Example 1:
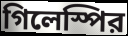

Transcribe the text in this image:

গিলেস্পির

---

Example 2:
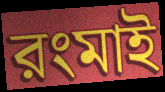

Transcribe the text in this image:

রংমাই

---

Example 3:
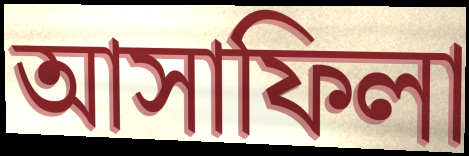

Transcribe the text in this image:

আসাফিলা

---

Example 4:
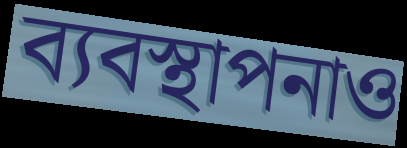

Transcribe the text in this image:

ব্যবস্থাপনাও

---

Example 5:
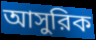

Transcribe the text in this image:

আসুরিক